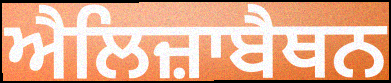
ਐਲਿਜ਼ਾਬੈਥਨ